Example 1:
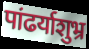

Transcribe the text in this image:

पांढर्याशुभ्र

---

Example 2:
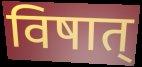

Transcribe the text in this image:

विषात्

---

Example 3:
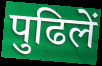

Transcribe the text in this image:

पुढिलें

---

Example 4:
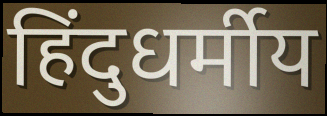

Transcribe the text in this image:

हिंदुधर्मीय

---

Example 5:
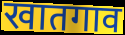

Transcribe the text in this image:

खातगाव